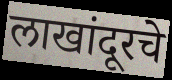
लाखांदूरचे